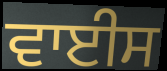
ਵਾਈਸ